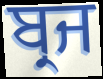
ਬ੍ਰਜ